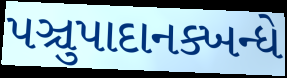
પઞ્ચુપાદાનક્ખન્ધે